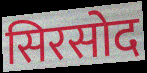
सिरसोद